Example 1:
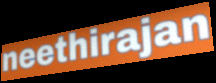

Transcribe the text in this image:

neethirajan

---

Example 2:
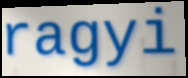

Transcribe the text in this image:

ragyi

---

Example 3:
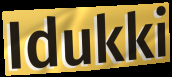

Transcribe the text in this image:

Idukki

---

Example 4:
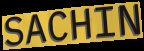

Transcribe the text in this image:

SACHIN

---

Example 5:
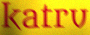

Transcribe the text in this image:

katru